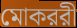
মোকররী